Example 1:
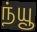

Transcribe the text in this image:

ந்யூ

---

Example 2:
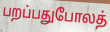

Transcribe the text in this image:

பறப்பதுபோலத்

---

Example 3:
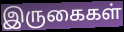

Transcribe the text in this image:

இருகைகள்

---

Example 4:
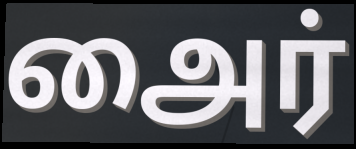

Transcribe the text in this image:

அைர்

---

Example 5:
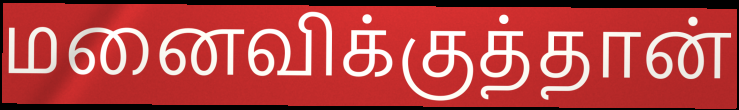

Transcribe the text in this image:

மனைவிக்குத்தான்